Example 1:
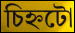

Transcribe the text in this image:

চিহ্নটো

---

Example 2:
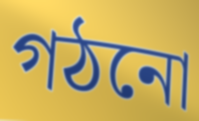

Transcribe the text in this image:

গঠনো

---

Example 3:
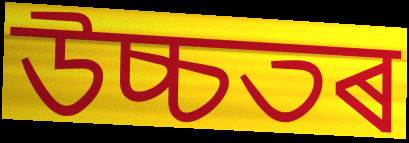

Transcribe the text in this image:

উচ্চতৰ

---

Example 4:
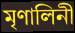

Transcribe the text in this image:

মৃণালিনী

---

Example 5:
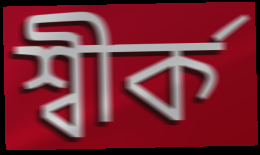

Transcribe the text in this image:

শ্বীৰ্ক